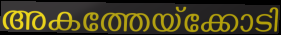
അകത്തേയ്‌ക്കോടി